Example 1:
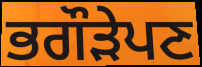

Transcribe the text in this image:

ਭਗੌੜੇਪਣ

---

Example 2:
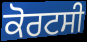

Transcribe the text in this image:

ਕੋਰਟਸੀ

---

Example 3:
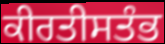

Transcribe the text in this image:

ਕੀਰਤੀਸਤੰਭ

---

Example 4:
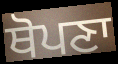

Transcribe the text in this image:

ਥੋਪਣਾ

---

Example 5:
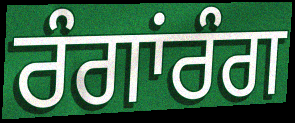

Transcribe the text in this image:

ਰੰਗਾਂਰੰਗ